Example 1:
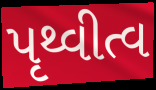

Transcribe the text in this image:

પૃથ્વીત્વ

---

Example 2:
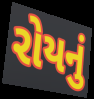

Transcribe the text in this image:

રોયનું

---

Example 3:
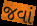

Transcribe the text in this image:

જવાં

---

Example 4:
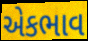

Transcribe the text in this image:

એકભાવ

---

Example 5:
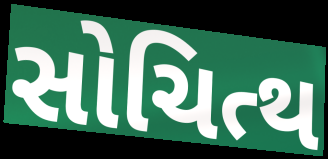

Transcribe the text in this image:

સોચિત્થ